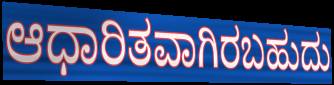
ಆಧಾರಿತವಾಗಿರಬಹುದು